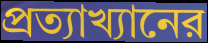
প্রত্যাখ্যানের